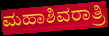
ಮಹಾಶಿವರಾತ್ರಿ